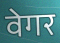
वेगर